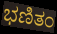
ಭಣಿತಂ